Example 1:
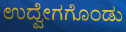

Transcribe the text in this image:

ಉದ್ವೇಗಗೊಂಡು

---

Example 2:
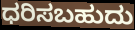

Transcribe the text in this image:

ಧರಿಸಬಹುದು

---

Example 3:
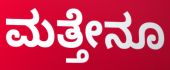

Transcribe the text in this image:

ಮತ್ತೇನೂ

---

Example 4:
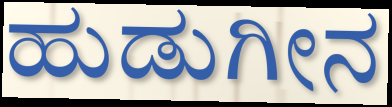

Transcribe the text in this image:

ಹುಡುಗೀನ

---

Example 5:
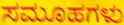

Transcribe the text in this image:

ಸಮೂಹಗಳು